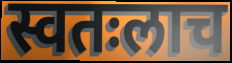
स्वतःलाच